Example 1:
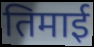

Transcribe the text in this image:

तिमाई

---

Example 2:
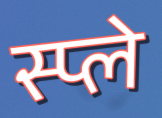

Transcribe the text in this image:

स्प्ले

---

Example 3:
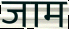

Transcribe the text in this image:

जाम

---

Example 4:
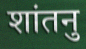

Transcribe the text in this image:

शांतनु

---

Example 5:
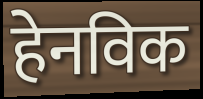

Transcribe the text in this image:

हेनविक